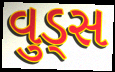
વુડ્સ